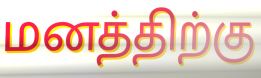
மனத்திற்கு